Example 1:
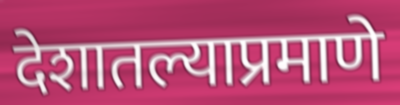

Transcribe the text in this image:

देशातल्याप्रमाणे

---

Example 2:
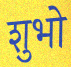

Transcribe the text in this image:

शुभो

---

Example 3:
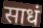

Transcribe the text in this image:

साधं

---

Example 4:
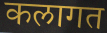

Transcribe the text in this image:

कलागत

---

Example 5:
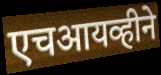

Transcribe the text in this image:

एचआयव्हीने